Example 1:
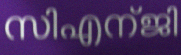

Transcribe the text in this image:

സിഎന്ജി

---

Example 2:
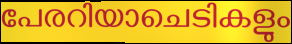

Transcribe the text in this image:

പേരറിയാചെടികളും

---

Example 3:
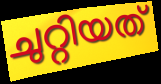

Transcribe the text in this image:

ചുറ്റിയത്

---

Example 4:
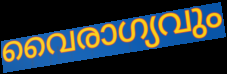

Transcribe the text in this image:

വൈരാഗ്യവും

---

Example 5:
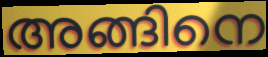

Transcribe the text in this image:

അങ്ങിനെ